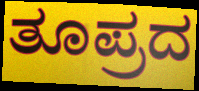
ತೂಪ್ರದ